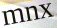
mnx